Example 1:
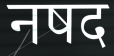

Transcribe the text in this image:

नषद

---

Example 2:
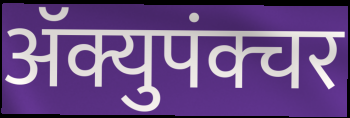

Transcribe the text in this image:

ॲक्युपंक्चर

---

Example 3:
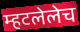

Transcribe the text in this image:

म्हटलेलेच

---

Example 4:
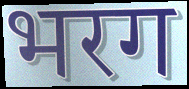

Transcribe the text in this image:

भरग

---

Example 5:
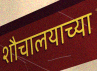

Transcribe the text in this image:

शौचालयाच्या